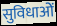
सुविधाओें